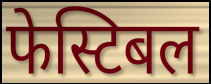
फेस्टिबल